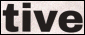
tive